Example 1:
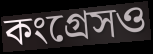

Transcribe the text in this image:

কংগ্রেসও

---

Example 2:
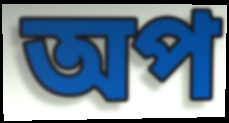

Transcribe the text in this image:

অপ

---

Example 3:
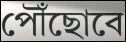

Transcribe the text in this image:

পৌঁছোবে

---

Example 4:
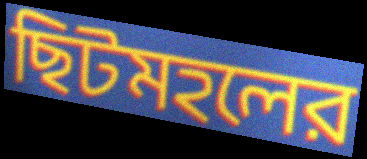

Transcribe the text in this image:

ছিটমহলের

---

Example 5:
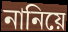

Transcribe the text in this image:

নানিয়ে